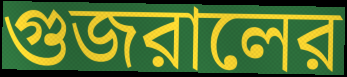
গুজরালের